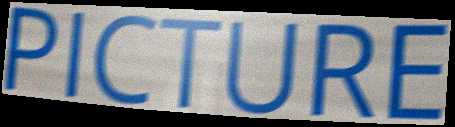
PICTURE